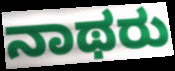
ನಾಥರು